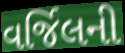
વર્જિલની